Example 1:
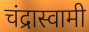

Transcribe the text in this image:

चंद्रास्वामी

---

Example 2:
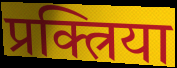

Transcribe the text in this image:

प्रक्त्रिया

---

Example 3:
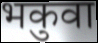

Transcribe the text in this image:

भकुवा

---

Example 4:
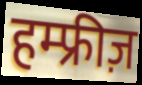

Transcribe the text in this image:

हम्फ्रीज़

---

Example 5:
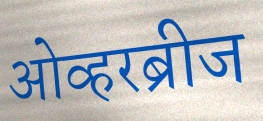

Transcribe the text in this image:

ओव्हरब्रीज